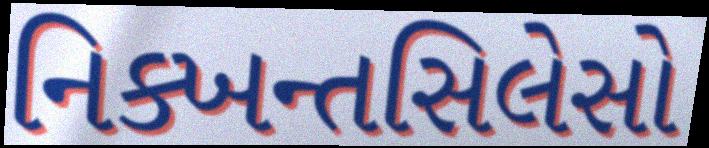
નિક્ખન્તસિલેસો